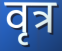
वृत्र